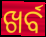
ଖର୍ବ